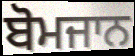
ਬੋਮਜਾਨ